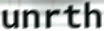
unrth